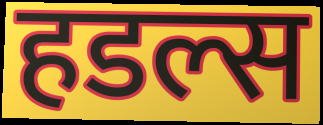
हडल्स